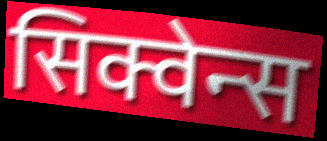
सिक्वेन्स